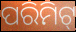
ପରିମିଟ୍